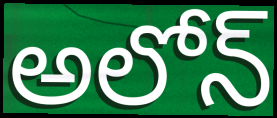
అలోన్